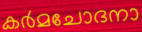
കർമചോദനാ